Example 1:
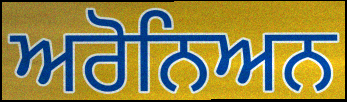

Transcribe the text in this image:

ਅਰੋਨਿਅਨ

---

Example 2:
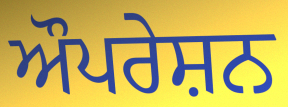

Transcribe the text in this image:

ਔਪਰੇਸ਼ਨ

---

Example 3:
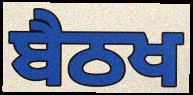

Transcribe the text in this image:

ਬੈਠਖ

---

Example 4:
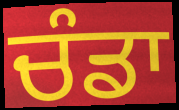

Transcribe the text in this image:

ਚੰਡਾ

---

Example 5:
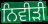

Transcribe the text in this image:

ਨਿਵੀੜੀ